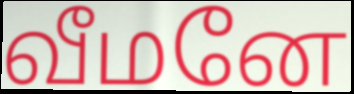
வீமனே